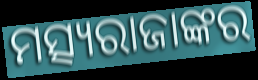
ମତ୍ସ୍ୟରାଜାଙ୍କର